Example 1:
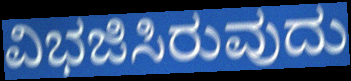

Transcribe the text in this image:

ವಿಭಜಿಸಿರುವುದು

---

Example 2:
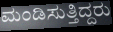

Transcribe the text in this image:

ಮಂಡಿಸುತ್ತಿದ್ದರು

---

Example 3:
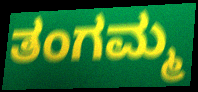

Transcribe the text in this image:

ತಂಗಮ್ಮ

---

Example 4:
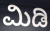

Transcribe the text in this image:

ಮಿಡಿ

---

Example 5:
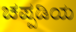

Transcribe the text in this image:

ಚಪ್ಪಡಿಯ